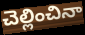
చెల్లించినా